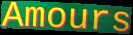
Amours